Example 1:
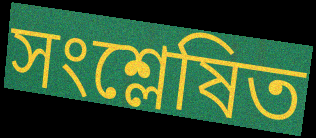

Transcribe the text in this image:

সংশ্লেষিত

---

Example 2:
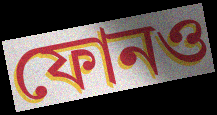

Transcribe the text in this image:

ফোনও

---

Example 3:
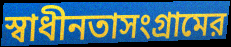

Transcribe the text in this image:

স্বাধীনতাসংগ্রামের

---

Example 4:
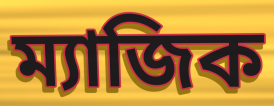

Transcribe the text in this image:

ম্যাজিক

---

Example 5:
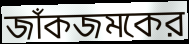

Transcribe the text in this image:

জাঁকজমকের